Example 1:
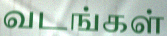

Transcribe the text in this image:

வடங்கள்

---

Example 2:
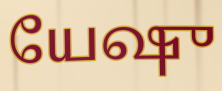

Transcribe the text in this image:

யேஷு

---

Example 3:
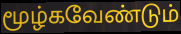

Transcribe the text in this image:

மூழ்கவேண்டும்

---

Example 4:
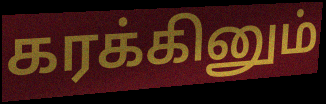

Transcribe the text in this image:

கரக்கினும்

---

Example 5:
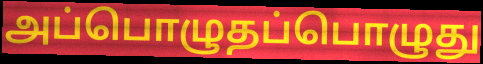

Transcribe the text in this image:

அப்பொழுதப்பொழுது